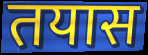
तयास